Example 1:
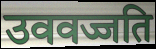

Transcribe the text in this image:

उववज्जति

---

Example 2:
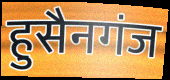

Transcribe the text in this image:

हुसैनगंज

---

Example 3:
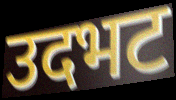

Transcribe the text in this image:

उदभट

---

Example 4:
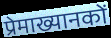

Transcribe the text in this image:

प्रेमाख्यानकों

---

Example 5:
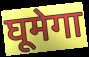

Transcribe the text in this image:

घूमेगा